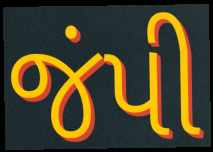
જંપી